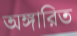
অঙ্গারিত